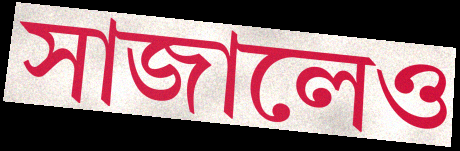
সাজালেও